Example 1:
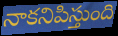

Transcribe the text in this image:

నాకనిపిస్తుంది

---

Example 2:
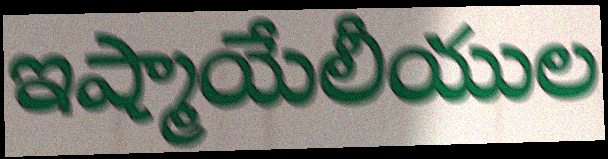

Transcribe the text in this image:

ఇష్మాయేలీయుల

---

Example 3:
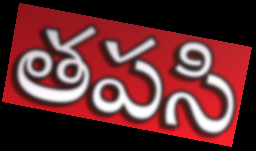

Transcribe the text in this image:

తపసి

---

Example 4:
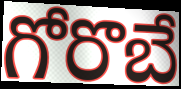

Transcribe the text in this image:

గోరొబే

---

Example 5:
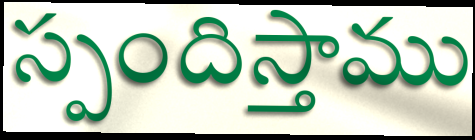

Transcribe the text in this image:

స్పందిస్తాము